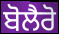
ਬੋਲੈਰੋ